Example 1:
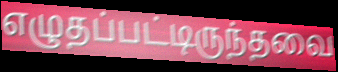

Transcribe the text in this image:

எழுதப்பட்டிருந்தவை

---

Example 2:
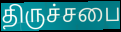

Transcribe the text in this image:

திருச்சபை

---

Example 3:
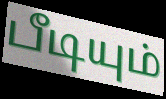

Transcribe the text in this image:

பீடியும்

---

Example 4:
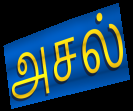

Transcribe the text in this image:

அசல்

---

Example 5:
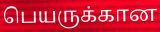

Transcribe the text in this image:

பெயருக்கான